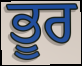
ਭੂਰ